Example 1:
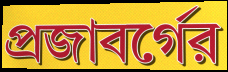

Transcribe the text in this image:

প্রজাবর্গের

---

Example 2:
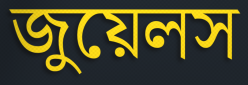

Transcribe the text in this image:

জুয়েলস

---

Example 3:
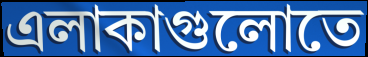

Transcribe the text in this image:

এলাকাগুলোতে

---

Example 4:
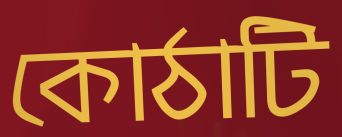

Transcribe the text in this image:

কোঠাটি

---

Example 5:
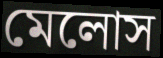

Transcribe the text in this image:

মেলোস